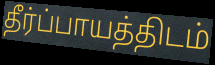
தீர்ப்பாயத்திடம்